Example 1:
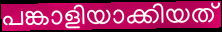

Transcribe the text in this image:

പങ്കാളിയാക്കിയത്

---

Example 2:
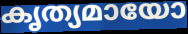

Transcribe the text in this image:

കൃത്യമായോ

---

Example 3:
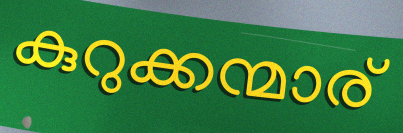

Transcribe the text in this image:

കുറുക്കന്മാര്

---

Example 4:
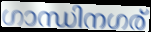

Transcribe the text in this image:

ഗാന്ധിനഗര്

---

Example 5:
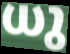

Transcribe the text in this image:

ധു